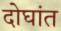
दोघांत